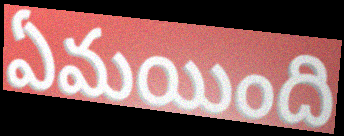
ఏమయింది